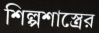
শিল্পশাস্ত্রের